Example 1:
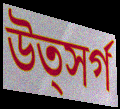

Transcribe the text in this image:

উত্সর্গ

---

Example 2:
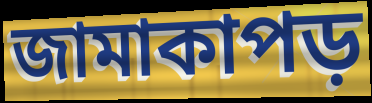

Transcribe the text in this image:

জামাকাপড়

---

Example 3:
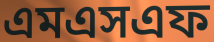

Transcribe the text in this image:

এমএসএফ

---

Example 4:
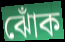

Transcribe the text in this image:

ঝোঁক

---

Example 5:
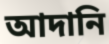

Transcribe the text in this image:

আদানি